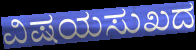
ವಿಷಯಸುಖದ